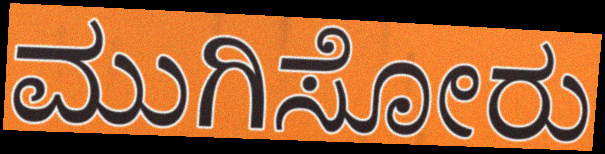
ಮುಗಿಸೋರು